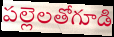
పల్లెలతోగూడి